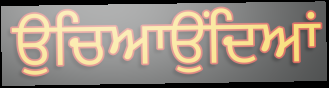
ਉਚਿਆਉਂਦਿਆਂ